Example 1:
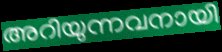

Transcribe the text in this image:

അറിയുന്നവനായി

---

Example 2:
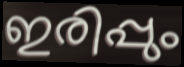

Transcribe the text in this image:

ഇരിപ്പും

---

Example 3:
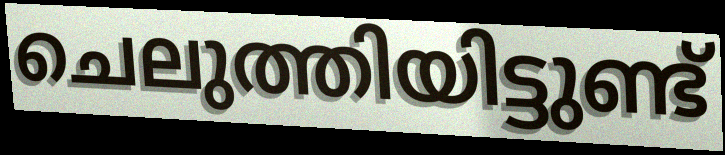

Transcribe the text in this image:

ചെലുത്തിയിട്ടുണ്ട്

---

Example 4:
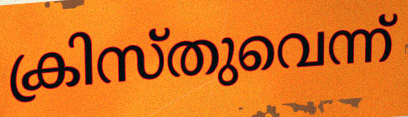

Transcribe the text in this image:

ക്രിസ്തുവെന്ന്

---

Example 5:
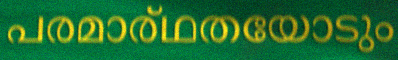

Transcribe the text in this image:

പരമാര്ഥതയോടും